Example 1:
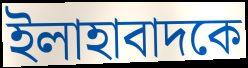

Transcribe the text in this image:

ইলাহাবাদকে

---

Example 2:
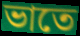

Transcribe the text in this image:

ভাতে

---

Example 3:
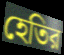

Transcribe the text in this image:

হেতির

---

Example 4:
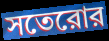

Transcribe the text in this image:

সতেরোর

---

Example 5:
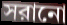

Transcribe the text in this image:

সরানো